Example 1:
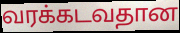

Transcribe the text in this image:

வரக்கடவதான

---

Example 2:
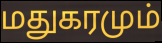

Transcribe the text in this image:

மதுகரமும்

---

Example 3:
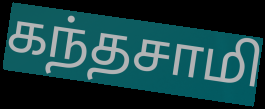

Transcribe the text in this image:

கந்தசாமி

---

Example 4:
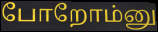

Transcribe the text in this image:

போறோம்னு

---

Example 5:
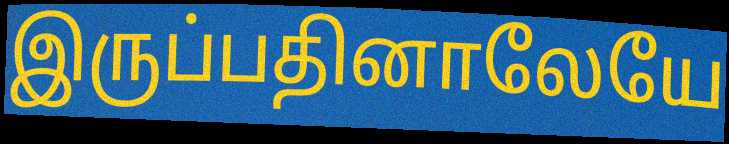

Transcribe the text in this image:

இருப்பதினாலேயே